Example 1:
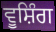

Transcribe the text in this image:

ਵੂਸ਼ਿੰਗ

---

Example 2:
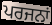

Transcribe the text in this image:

ਪਰਜਨਾਂ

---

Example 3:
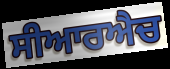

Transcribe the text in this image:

ਸੀਆਰਐਚ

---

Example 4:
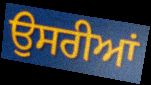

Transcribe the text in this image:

ਉਸਰੀਆਂ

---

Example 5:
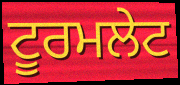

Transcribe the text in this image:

ਟੂਰਮਲੇਟ